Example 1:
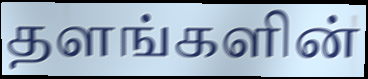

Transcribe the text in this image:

தளங்களின்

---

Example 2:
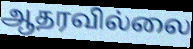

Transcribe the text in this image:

ஆதரவில்லை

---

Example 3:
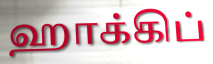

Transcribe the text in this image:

ஹாக்கிப்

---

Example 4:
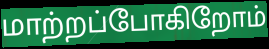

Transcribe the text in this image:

மாற்றப்போகிறோம்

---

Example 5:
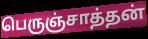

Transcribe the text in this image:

பெருஞ்சாத்தன்